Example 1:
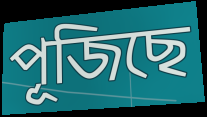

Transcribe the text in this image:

পূজিছে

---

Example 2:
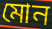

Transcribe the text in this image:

মোন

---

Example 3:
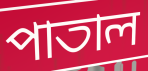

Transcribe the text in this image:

পাতাল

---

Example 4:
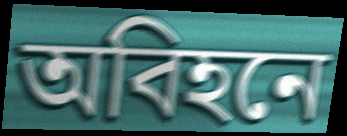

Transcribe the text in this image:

অবিহনে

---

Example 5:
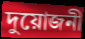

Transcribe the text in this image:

দুয়োজনী